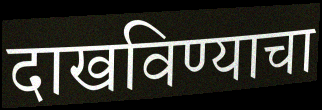
दाखविण्याचा